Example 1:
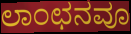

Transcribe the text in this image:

ಲಾಂಛನವೂ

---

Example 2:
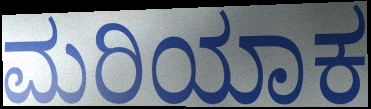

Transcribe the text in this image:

ಮರಿಯಾಕ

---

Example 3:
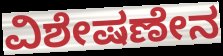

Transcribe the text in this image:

ವಿಶೇಷಣೇನ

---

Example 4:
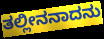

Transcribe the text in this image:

ತಲ್ಲೀನನಾದನು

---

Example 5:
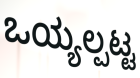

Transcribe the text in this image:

ಒಯ್ಯಲ್ಪಟ್ಟ